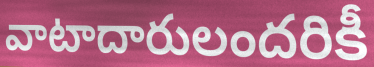
వాటాదారులందరికీ